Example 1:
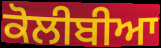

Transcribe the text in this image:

ਕੋਲੀਬੀਆ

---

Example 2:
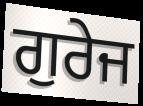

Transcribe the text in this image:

ਗੁਰੇਜ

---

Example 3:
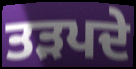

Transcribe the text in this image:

ਤੜਪਦੇ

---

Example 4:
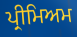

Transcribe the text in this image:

ਪ੍ਰੀਮਿਅਮ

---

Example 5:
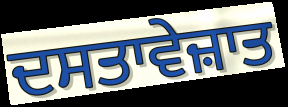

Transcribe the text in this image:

ਦਸਤਾਵੇਜ਼ਾਤ